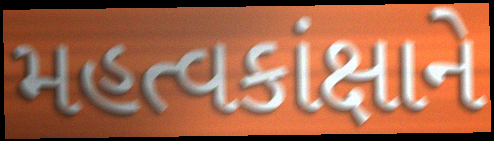
મહત્વકાંક્ષાને